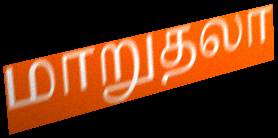
மாறுதலா